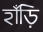
হাঁড়ি